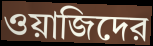
ওয়াজিদের